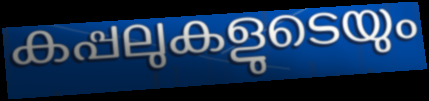
കപ്പലുകളുടെയും